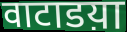
वाटाडय़ा